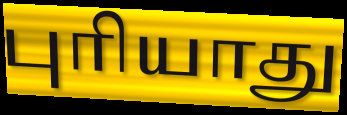
புரியாது